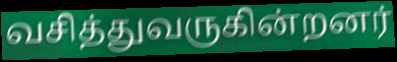
வசித்துவருகின்றனர்